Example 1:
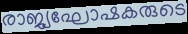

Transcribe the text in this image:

രാജ്യഘോഷകരുടെ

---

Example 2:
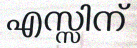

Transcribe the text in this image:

എസ്സിന്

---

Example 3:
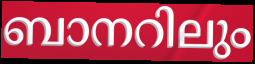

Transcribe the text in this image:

ബാനറിലും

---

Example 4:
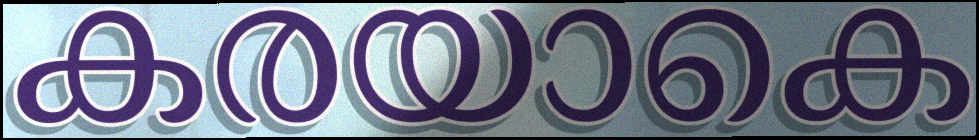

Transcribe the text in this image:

കരയാകെ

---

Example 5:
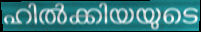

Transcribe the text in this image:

ഹിൽക്കിയയുടെ